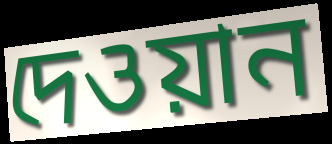
দেওয়ান